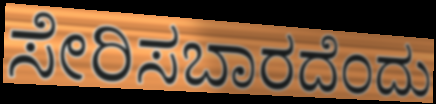
ಸೇರಿಸಬಾರದೆಂದು